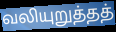
வலியுறுத்தத்